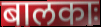
बालकाः